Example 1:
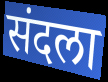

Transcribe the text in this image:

संदला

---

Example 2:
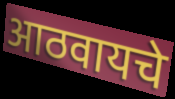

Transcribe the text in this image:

आठवायचे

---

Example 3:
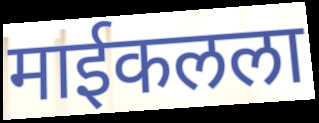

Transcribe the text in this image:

माईकलला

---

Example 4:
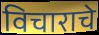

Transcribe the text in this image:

विचाराचे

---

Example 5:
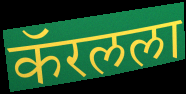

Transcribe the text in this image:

कॅरलला